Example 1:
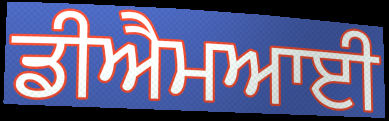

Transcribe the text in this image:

ਡੀਐਮਆਈ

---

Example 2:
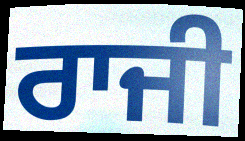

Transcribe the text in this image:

ਰਾਜੀ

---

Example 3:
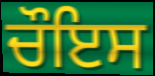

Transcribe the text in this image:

ਚੌਇਸ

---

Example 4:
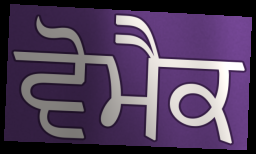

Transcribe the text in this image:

ਵੋਮੈਕ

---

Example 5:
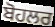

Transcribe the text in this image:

ਬੋਹਲਰ